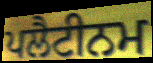
ਪਲੈਟੀਨਮ